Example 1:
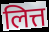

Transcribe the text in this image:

लित्त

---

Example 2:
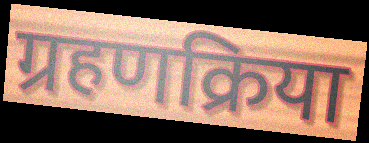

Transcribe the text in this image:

ग्रहणक्रिया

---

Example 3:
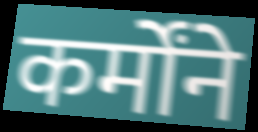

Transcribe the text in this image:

कर्मोंने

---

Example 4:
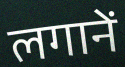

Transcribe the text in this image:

लगानें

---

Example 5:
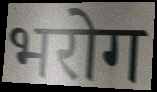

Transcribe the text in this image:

भरोग